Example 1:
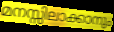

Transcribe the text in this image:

മനസ്സിലാക്കാനും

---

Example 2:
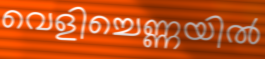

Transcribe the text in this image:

വെളിച്ചെണ്ണയിൽ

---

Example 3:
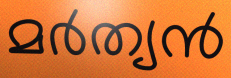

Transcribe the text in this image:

മർത്യൻ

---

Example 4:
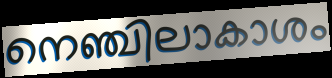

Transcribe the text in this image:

നെഞ്ചിലാകാശം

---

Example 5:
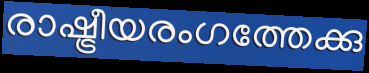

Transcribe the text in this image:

രാഷ്ട്രീയരംഗത്തേക്കു